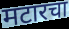
मटारचा